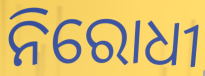
ନିରୋଧୀ